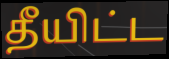
தீயிட்ட